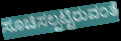
ಸೂಚಿಸಲ್ಪಟ್ಟಿರುವಂತೆ